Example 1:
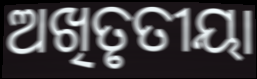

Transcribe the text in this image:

ଅଖିତୃତୀୟା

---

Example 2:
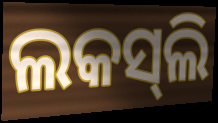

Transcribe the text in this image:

ଲକସ୍‍ଲି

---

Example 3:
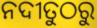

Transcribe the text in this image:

ନଦୀତୁଠରୁ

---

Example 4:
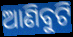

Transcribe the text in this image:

ଆଣିବୁଟି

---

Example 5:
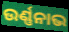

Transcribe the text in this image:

ଉର୍ଣ୍ଣନାଭ